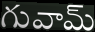
గువామ్